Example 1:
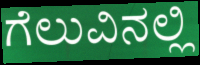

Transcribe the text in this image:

ಗೆಲುವಿನಲ್ಲಿ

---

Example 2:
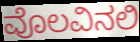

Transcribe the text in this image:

ವೊಲವಿನಲಿ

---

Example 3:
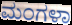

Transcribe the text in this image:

ಮಂಗಳಾ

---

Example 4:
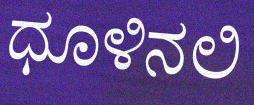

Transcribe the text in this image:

ಧೂಳಿನಲಿ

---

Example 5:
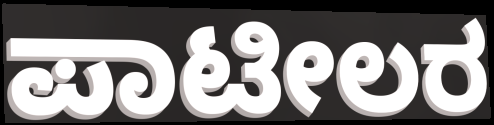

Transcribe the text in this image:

ಪಾಟೀಲರ